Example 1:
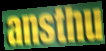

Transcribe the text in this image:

ansthu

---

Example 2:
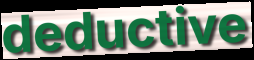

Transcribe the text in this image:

deductive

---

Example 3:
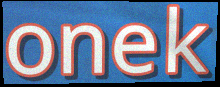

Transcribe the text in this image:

onek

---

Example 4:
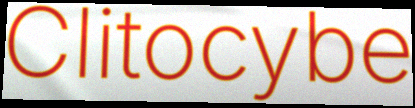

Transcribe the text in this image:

Clitocybe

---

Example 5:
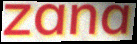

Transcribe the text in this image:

zana